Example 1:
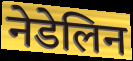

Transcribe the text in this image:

नेडेलिन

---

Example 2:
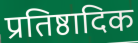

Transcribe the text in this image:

प्रतिष्ठादिक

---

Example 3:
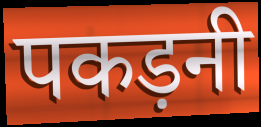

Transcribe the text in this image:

पकड़नी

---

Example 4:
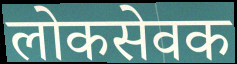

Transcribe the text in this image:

लोकसेवक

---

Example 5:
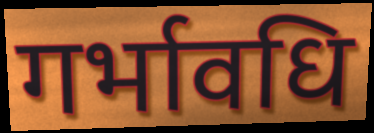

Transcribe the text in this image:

गर्भावधि